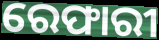
ରେଫାରୀ